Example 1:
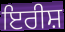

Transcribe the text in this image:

ਇਰੀਸ਼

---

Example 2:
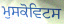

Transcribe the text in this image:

ਮੁਸਕੋਵਿਟਸ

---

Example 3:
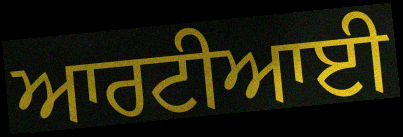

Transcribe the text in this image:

ਆਰਟੀਆਈ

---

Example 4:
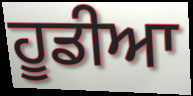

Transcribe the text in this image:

ਹੂਡੀਆ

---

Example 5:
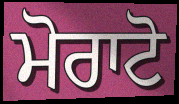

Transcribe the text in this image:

ਮੋਰਾਟੋ